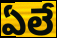
ఏలే